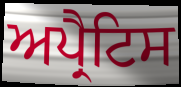
ਅਪ੍ਰੈਟਿਸ